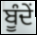
ਬੂੰਦੇਂ